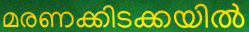
മരണക്കിടക്കയിൽ